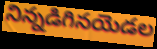
నిన్నడిగినయెడల